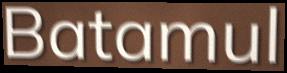
Batamul